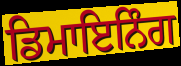
ਡਿਮਾਇਨਿੰਗ